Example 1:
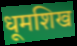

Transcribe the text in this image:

धूमशिख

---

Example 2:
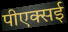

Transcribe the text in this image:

पीएक्सई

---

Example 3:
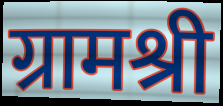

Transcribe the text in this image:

ग्रामश्री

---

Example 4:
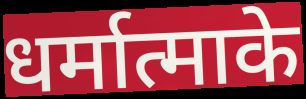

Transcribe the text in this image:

धर्मात्माके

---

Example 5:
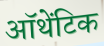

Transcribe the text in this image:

ऑथेंटिक